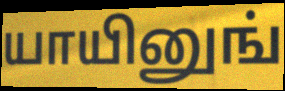
யாயினுங்